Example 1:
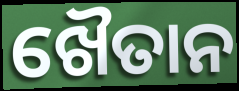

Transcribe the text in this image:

ଖୈତାନ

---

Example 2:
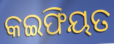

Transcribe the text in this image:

କଇଫିୟତ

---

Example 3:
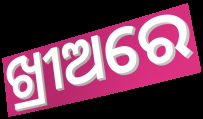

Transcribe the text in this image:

ଖ୍ରୀଅରେ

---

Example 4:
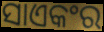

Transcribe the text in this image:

ସାଏକଂର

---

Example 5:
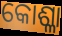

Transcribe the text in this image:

କୋଶ୍ଳା